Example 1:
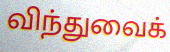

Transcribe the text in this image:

விந்துவைக்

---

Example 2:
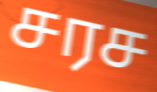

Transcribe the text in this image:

சரச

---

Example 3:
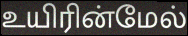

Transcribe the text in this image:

உயிரின்மேல்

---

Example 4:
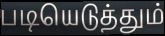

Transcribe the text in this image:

படியெடுத்தும்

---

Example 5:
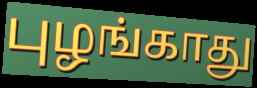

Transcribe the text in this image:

புழங்காது